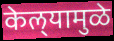
केल्यामुळे